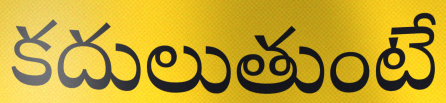
కదులుతుంటే